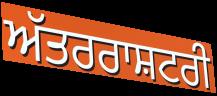
ਅੱਤਰਰਾਸ਼ਟਰੀ